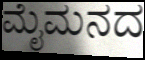
ಮೈಮನದ